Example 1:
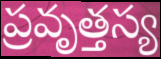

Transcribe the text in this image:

ప్రవృత్తస్య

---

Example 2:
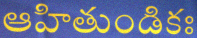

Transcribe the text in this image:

ఆహితుండికః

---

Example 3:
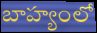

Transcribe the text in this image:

బాహ్యంలో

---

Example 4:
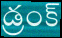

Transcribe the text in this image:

డ్రంక్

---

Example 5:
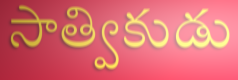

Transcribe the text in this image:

సాత్వికుడు